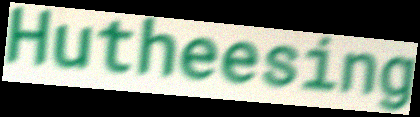
Hutheesing